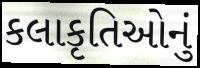
કલાકૃતિઓનું